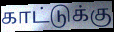
காட்டுக்கு